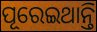
ପୂରେଇଥାନ୍ତି